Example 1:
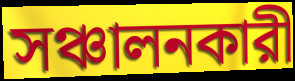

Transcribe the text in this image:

সঞ্চালনকারী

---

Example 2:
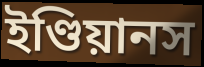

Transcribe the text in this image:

ইণ্ডিয়ানস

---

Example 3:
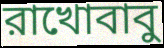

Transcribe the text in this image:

রাখোবাবু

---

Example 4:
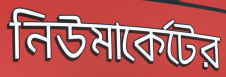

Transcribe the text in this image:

নিউমার্কেটের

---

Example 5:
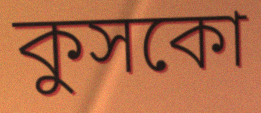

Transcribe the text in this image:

কুসকো